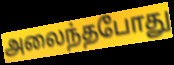
அலைந்தபோது